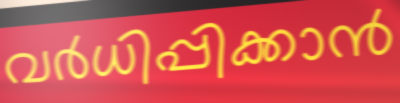
വർധിപ്പിക്കാൻ